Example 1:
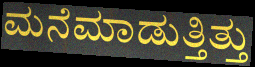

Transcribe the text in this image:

ಮನೆಮಾಡುತ್ತಿತ್ತು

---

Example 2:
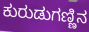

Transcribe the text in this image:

ಕುರುಡುಗಣ್ಣಿನ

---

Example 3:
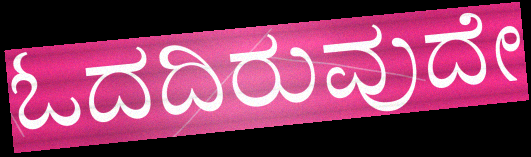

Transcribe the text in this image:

ಓದದಿರುವುದೇ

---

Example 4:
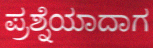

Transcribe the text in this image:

ಪ್ರಶ್ನೆಯಾದಾಗ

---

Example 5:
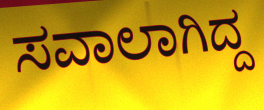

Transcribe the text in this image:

ಸವಾಲಾಗಿದ್ದ